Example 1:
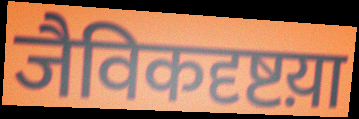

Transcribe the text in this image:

जैविकदृष्टय़ा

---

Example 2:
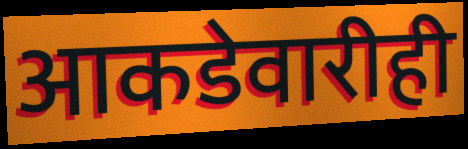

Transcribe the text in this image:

आकडेवारीही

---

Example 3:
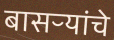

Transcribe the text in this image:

बासऱ्यांचे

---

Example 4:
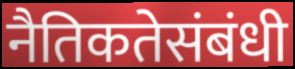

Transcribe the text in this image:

नैतिकतेसंबंधी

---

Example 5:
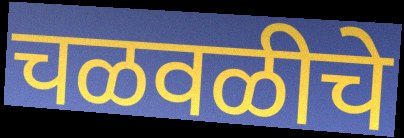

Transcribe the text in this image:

चळवळीचे